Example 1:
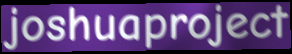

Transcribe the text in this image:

joshuaproject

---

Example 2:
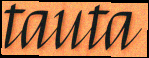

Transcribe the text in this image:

tauta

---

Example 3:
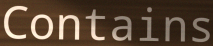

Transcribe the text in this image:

Contains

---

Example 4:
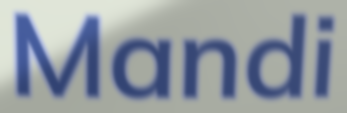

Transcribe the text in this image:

Mandi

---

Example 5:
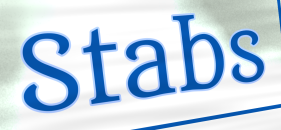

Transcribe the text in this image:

Stabs